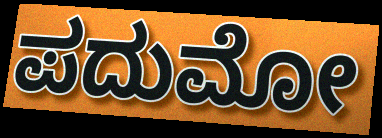
ಪದುಮೋ